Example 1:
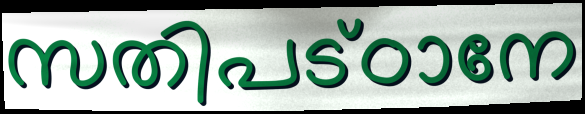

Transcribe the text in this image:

സതിപട്ഠാനേ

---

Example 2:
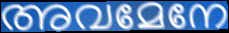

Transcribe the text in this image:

അവമേനേ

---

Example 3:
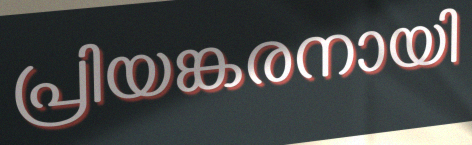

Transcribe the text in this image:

പ്രിയങ്കരനായി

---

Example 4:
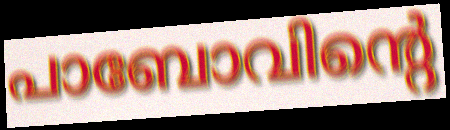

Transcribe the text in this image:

പാബോവിന്റെ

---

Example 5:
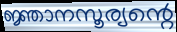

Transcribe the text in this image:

ജ്ഞാനസൂര്യന്റെ